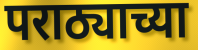
पराठ्याच्या